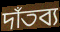
দাঁতব্য